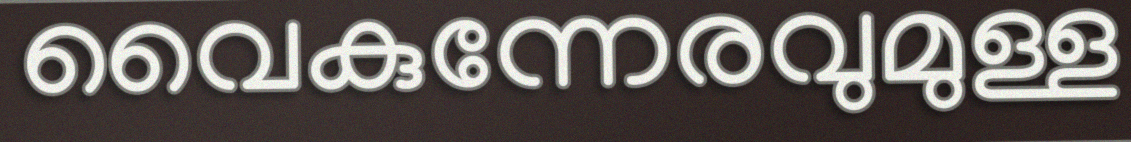
വൈകുന്നേരവുമുള്ള